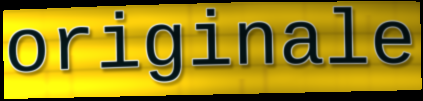
originale